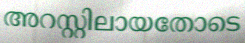
അറസ്റ്റിലായതോടെ